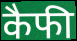
कैफी